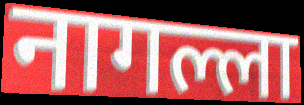
नागल्ला